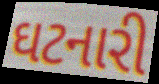
ઘટનારી